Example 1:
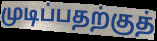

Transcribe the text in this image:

முடிப்பதற்குத்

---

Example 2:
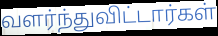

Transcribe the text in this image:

வளர்ந்துவிட்டார்கள்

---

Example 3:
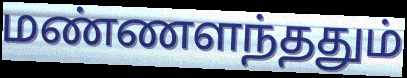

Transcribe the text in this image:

மண்ணளந்ததும்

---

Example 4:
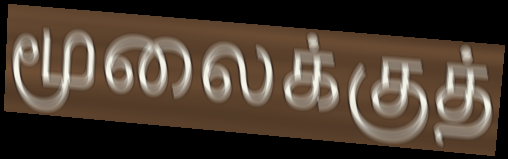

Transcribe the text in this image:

மூலைக்குத்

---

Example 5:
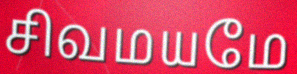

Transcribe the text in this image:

சிவமயமே